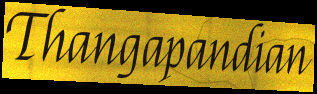
Thangapandian